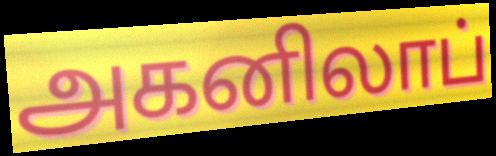
அகனிலாப்